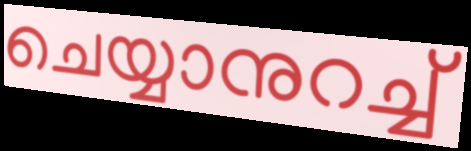
ചെയ്യാനുറച്ച്